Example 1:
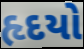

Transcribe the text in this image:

હૃદયો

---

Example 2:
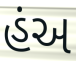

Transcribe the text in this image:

હંઅ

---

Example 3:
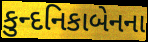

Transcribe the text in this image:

કુન્દનિકાબેનના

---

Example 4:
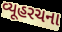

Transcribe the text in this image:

વ્યૂહરચના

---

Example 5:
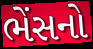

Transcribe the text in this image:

ભેંસનો